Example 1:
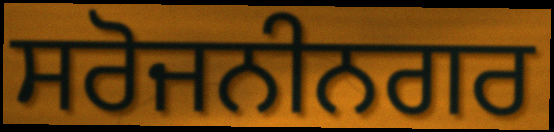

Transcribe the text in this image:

ਸਰੋਜਨੀਨਗਰ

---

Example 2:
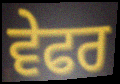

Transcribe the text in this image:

ਵੇਫਰ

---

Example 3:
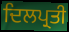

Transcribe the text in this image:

ਦਿਲਪ੍ਰਤੀ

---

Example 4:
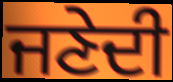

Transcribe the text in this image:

ਜਣੇਦੀ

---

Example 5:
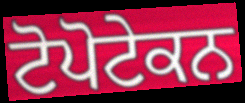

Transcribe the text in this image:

ਟੋਪੋਟੇਕਨ